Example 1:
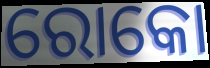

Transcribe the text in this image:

ରୋକୋ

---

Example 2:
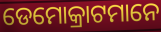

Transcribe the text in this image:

ଡେମୋକ୍ରାଟମାନେ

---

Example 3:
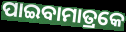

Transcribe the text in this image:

ପାଇବାମାତ୍ରକେ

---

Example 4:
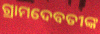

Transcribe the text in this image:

ଗ୍ରାମଦେବତୀଙ୍କ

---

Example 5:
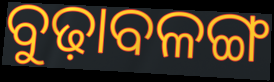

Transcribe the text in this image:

ବୁଢ଼ାବଳଙ୍ଗ